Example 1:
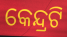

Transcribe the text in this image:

କେନ୍ଦ୍ରଟି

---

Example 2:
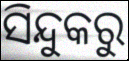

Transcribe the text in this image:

ସିନ୍ଦୁକରୁ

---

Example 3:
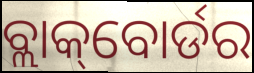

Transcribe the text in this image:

ବ୍ଲାକ୍‌ବୋର୍ଡର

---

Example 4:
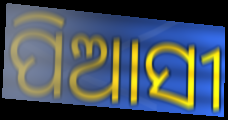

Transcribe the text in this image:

ପିଆସୀ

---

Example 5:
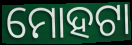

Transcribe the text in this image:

ମୋହଟା